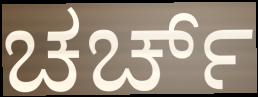
ಚರ್ಚ್